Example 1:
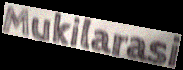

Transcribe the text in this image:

Mukilarasi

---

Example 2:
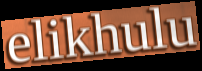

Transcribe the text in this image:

elikhulu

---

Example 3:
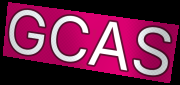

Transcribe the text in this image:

GCAS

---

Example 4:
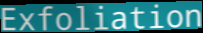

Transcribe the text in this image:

Exfoliation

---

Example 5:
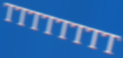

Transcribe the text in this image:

TTTTTTTT